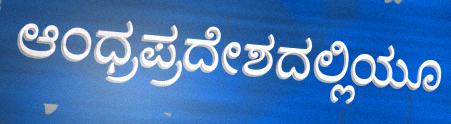
ಆಂಧ್ರಪ್ರದೇಶದಲ್ಲಿಯೂ